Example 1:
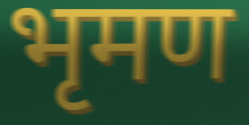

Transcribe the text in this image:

भृमण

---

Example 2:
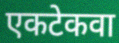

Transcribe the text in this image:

एकटेकवा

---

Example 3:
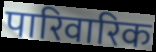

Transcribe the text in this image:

पारिवारिक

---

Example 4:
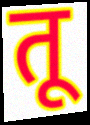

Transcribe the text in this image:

तू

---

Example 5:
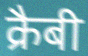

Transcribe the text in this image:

क्रैबी